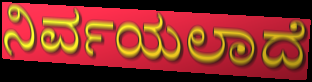
ನಿರ್ವಯಲಾದೆ